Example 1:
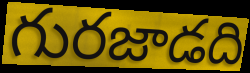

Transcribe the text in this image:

గురజాడది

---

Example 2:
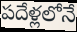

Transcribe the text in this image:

పదేళ్లలోనే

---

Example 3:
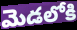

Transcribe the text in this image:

మెడలోకి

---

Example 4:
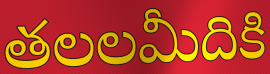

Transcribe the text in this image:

తలలమీదికి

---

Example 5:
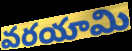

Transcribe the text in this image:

వరయామి